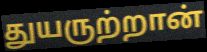
துயருற்றான்